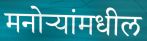
मनोऱ्यांमधील